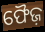
ଫୈଜ଼